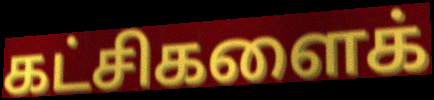
கட்சிகளைக்